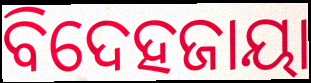
ବିଦେହଜାୟା